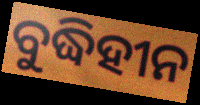
ବୁଦ୍ଧିହୀନ